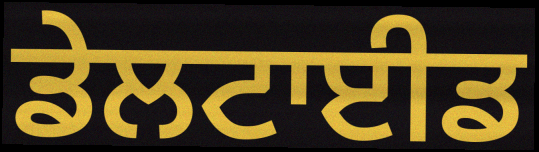
ਡੇਲਟਾਈਡ